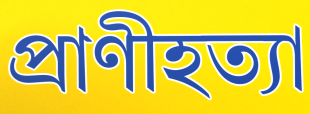
প্রাণীহত্যা